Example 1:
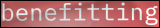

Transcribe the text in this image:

benefitting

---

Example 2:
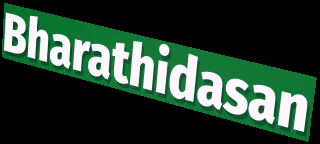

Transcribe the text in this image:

Bharathidasan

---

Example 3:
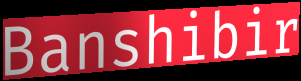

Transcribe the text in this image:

Banshibir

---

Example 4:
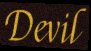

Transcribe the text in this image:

Devil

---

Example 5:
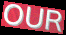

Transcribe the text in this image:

OUR